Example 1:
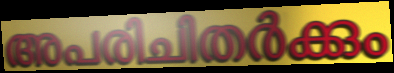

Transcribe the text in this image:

അപരിചിതർക്കും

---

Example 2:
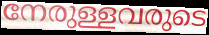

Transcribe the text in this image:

നേരുള്ളവരുടെ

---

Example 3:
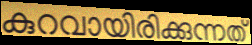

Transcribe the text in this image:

കുറവായിരിക്കുന്നത്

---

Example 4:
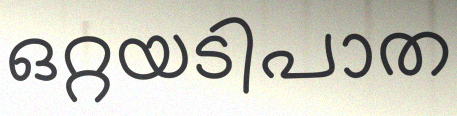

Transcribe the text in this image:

ഒറ്റയടിപാത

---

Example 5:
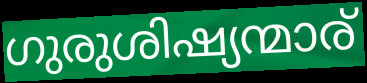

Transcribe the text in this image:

ഗുരുശിഷ്യന്മാര്